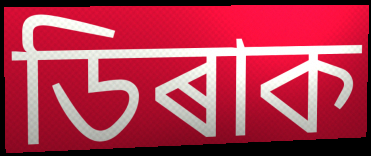
ডিৰাক